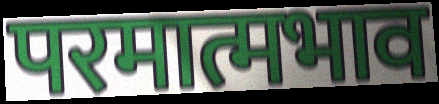
परमात्मभाव